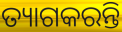
ତ୍ୟାଗକରନ୍ତି